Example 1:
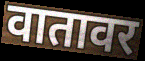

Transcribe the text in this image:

वातावर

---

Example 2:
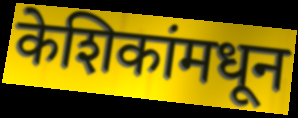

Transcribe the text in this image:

केशिकांमधून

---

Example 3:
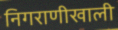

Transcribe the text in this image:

निगराणीखाली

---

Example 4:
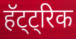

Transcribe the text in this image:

हॅट्ट्रिक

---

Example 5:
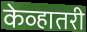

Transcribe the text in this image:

केव्हातरी